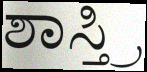
ಶಾಸ್ತ್ರಿ